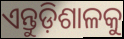
ଏନ୍ତୁଡ଼ିଶାଳକୁ